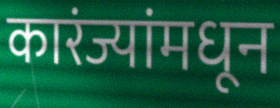
कारंज्यांमधून